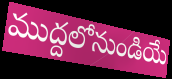
ముద్దలోనుండియే